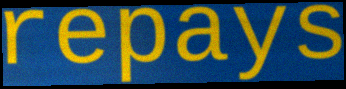
repays